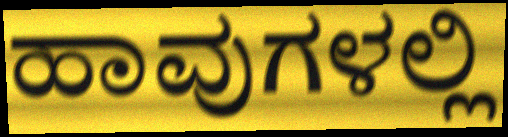
ಹಾವುಗಳಲ್ಲಿ